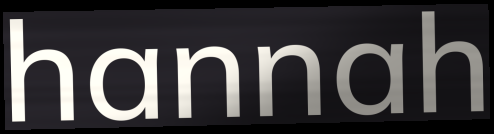
hannah